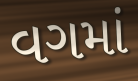
વગમાં